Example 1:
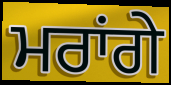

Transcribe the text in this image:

ਮਰਾਂਗੇ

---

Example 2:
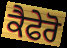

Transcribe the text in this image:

ਕੈਫੇਰੋ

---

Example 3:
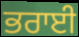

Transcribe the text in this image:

ਭਰਾਈ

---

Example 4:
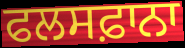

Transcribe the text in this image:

ਫਲਸਫ਼ਾਨਾ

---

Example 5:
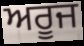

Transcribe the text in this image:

ਅਰੂਜ